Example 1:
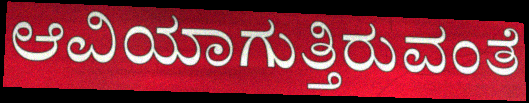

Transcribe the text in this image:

ಆವಿಯಾಗುತ್ತಿರುವಂತೆ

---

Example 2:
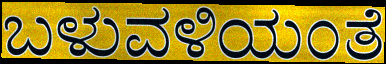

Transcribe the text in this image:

ಬಳುವಳಿಯಂತೆ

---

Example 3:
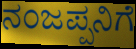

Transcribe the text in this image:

ನಂಜಪ್ಪನಿಗೆ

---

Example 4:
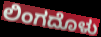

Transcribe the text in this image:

ಲಿಂಗದೊಳು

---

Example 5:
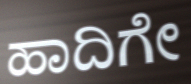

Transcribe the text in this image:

ಹಾದಿಗೇ